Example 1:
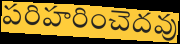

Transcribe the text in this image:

పరిహరించెదవు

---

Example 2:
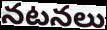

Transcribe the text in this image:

నటనలు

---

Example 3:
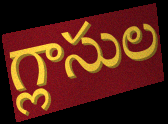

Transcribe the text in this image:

గ్లాసుల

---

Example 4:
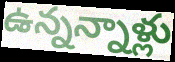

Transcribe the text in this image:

ఉన్నన్నాళ్లు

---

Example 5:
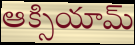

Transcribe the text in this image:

ఆక్సియామ్